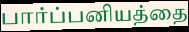
பார்ப்பனியத்தை